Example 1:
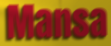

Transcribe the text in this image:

Mansa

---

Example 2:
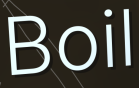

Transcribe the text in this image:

Boil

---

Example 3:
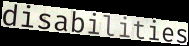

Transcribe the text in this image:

disabilities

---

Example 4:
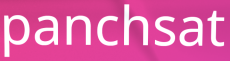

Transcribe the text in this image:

panchsat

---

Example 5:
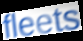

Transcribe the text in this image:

fleets